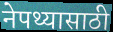
नेपथ्यासाठी